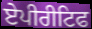
ਏਪੀਰੀਟਿਫ